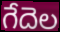
గేదెల